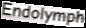
Endolymph